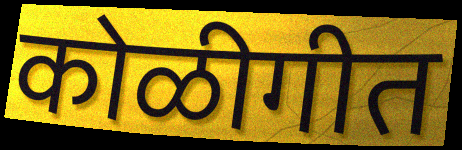
कोळीगीत